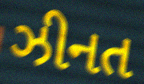
ઝીનત